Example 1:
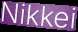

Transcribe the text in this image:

Nikkei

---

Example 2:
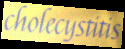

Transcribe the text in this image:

cholecystitis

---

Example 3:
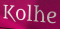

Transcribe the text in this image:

Kolhe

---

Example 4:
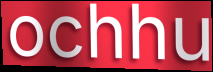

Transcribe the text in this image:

ochhu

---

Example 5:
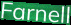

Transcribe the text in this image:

Farnell